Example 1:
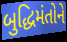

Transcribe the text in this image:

બુદ્ધિમંતોને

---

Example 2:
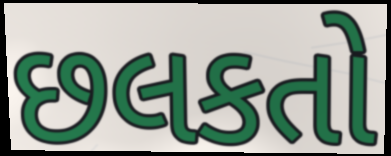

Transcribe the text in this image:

છલકતો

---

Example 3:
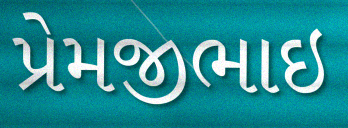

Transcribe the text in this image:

પ્રેમજીભાઇ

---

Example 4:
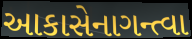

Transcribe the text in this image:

આકાસેનાગન્ત્વા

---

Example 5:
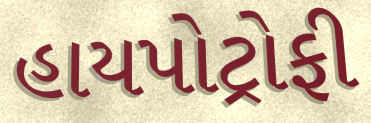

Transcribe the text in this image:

હાયપોટ્રોફી